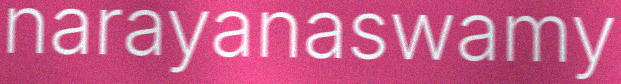
narayanaswamy